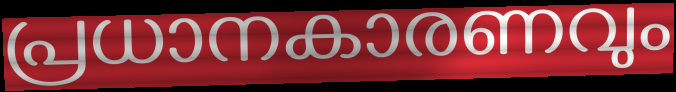
പ്രധാനകാരണവും